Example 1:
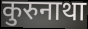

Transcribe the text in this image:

कुरुनाथा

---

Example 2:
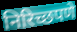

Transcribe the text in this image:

निरिच्छपणे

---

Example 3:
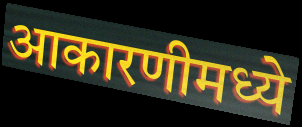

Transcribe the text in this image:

आकारणीमध्ये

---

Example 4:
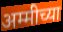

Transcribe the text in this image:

अम्मीच्या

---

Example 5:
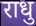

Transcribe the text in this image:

राधु